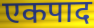
एकपाद